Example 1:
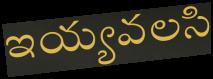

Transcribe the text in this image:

ఇయ్యవలసి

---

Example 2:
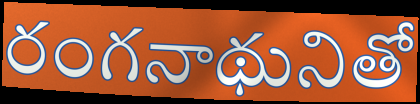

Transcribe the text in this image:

రంగనాథునితో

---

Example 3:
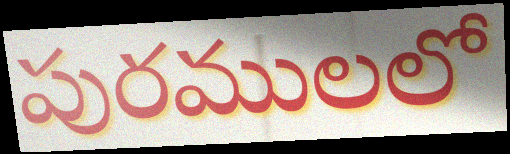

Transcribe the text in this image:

పురములలో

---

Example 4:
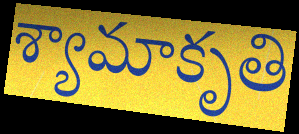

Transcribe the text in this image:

శ్యామాకృతి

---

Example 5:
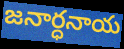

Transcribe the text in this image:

జనార్ధనాయ